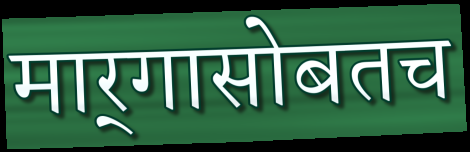
मार्गासोबतच